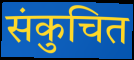
संकुचित